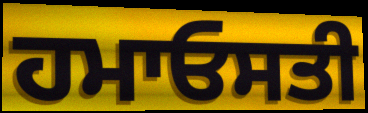
ਹਮਾਓਸਤੀ